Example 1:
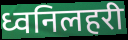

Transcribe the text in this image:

ध्वनिलहरी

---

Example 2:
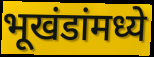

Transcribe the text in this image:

भूखंडांमध्ये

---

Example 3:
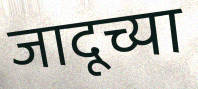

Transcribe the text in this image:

जादूच्या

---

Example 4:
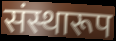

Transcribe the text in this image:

संस्थारूप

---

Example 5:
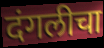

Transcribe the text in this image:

दंगलीचा